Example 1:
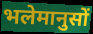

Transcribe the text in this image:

भलेमानुसों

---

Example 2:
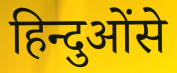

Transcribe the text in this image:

हिन्दुओंसे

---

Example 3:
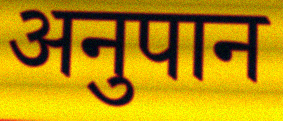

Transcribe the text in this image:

अनुपान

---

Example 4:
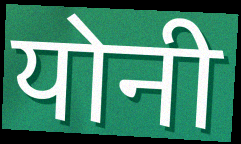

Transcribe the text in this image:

योनी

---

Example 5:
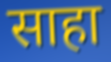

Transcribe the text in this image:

साहा